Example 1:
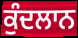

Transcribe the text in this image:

ਕੁੰਦਲਾਨ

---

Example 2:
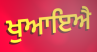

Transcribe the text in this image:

ਖੁਆਇਐ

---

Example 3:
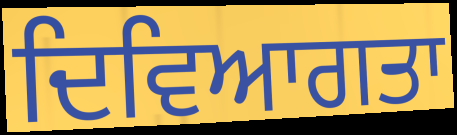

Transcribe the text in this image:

ਦਿਵਿਆਗਤਾ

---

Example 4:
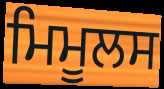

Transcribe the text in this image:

ਮਿਮੂਲਸ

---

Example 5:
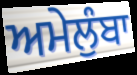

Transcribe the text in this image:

ਅਮੇਲੁੰਬਾ